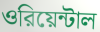
ওরিয়েন্টাল